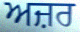
ਅਜ਼ਰ